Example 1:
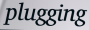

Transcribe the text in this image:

plugging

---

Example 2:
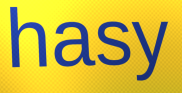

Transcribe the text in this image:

hasy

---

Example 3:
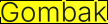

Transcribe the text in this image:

Gombak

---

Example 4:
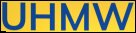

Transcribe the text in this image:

UHMW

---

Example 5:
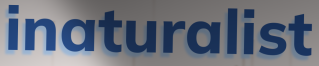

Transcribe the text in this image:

inaturalist